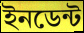
ইনডেন্ট